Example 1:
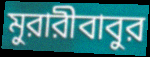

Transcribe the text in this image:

মুরারীবাবুর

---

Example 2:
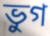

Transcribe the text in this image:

ভুগ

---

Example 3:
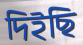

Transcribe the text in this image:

দিইছি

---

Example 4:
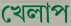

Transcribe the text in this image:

খেলাপ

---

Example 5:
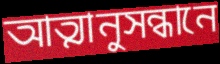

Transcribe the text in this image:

আত্মানুসন্ধানে